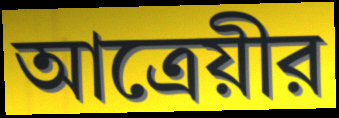
আত্রেয়ীর